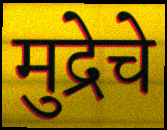
मुद्रेचे